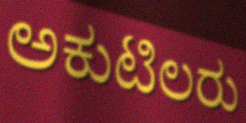
ಅಕುಟಿಲರು